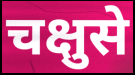
चक्षुसे